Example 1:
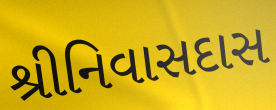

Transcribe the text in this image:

શ્રીનિવાસદાસ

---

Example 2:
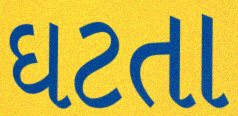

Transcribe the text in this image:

ઘટતા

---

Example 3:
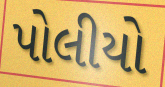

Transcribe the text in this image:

પોલીયો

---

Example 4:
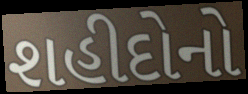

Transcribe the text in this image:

શહીદોનો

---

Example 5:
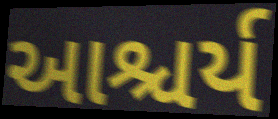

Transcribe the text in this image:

આશ્ચર્ય